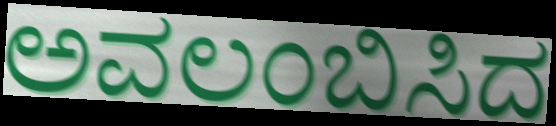
ಅವಲಂಬಿಸಿದ